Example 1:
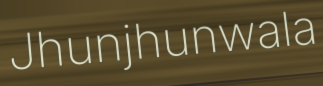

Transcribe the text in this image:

Jhunjhunwala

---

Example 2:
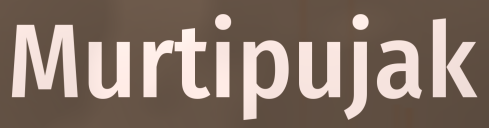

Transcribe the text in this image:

Murtipujak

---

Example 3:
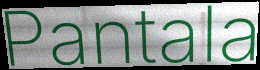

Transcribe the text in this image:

Pantala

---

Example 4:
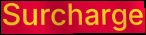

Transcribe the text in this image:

Surcharge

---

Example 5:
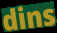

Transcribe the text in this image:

dins